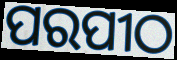
ପରପୀଠ